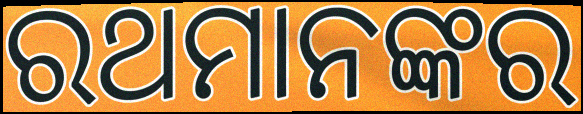
ରଥମାନଙ୍କର